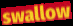
swallow